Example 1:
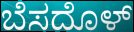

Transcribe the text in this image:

ಬೆಸದೊಳ್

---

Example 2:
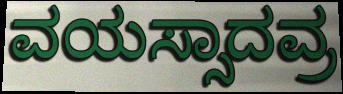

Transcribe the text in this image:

ವಯಸ್ಸಾದವ್ರ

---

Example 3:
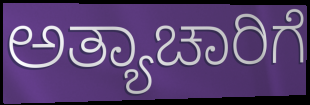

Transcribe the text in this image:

ಅತ್ಯಾಚಾರಿಗೆ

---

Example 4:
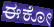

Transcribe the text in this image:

ಈಕೋ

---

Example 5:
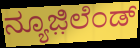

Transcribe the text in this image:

ನ್ಯೂಜ಼ಿಲೆಂಡ್